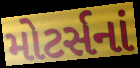
મોટર્સનાં